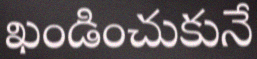
ఖండించుకునే